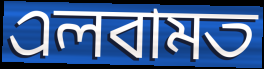
এলবামত